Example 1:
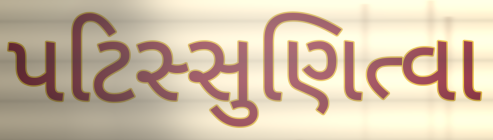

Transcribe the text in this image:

પટિસ્સુણિત્વા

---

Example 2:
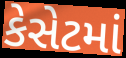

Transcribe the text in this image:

કેસેટમાં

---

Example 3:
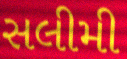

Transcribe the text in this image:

સલીમી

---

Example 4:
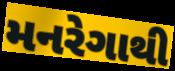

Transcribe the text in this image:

મનરેગાથી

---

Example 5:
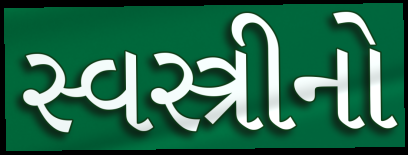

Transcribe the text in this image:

સ્વસ્ત્રીનો